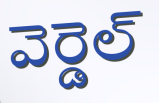
వెర్డెల్